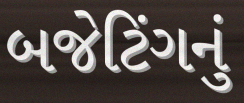
બજેટિંગનું